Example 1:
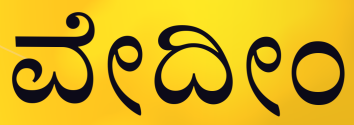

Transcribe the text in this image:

ವೇದೀಂ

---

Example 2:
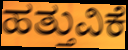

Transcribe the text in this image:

ಹತ್ತುವಿಕೆ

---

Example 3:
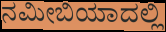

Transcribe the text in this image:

ನಮೀಬಿಯಾದಲ್ಲಿ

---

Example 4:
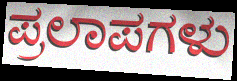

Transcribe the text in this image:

ಪ್ರಲಾಪಗಳು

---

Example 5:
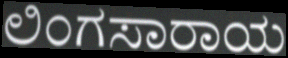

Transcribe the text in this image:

ಲಿಂಗಸಾರಾಯ